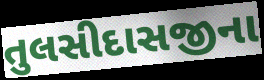
તુલસીદાસજીના